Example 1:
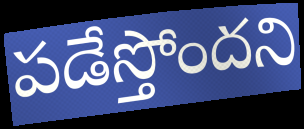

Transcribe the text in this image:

పడేస్తోందని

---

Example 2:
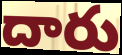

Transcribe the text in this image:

దారు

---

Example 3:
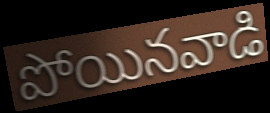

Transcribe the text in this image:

పోయినవాడి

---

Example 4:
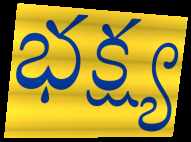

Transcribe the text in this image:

భక్ష్య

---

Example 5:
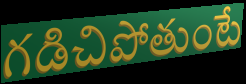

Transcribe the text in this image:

గడిచిపోతుంటే